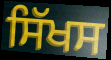
ਸਿੱਖਸ